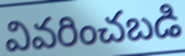
వివరించబడి